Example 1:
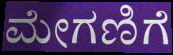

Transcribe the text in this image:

ಮೇಗಣಿಗೆ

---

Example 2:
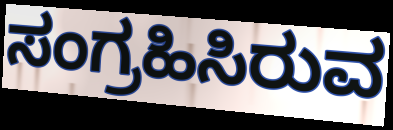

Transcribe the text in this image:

ಸಂಗ್ರಹಿಸಿರುವ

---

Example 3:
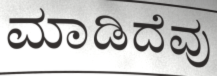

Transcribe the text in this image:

ಮಾಡಿದೆವು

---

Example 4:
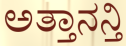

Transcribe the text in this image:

ಅತ್ತಾನನ್ತಿ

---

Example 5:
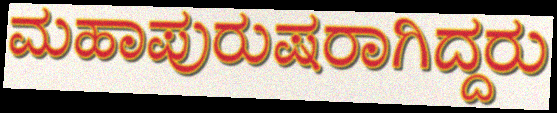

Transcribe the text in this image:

ಮಹಾಪುರುಷರಾಗಿದ್ದರು